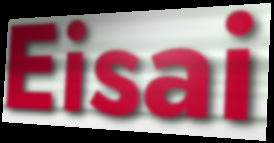
Eisai